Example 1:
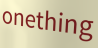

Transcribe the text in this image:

onething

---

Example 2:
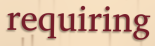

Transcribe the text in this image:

requiring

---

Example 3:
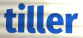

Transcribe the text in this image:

tiller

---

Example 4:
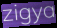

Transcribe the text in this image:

zigya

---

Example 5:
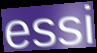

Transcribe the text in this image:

essi